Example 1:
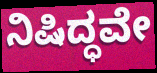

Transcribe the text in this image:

ನಿಷಿದ್ಧವೇ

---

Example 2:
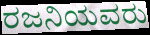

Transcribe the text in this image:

ರಜನಿಯವರು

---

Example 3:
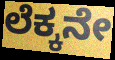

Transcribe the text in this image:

ಲೆಕ್ಕನೇ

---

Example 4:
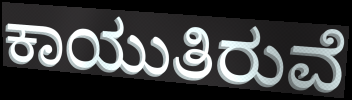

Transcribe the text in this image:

ಕಾಯುತಿರುವೆ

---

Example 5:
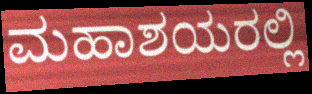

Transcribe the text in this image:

ಮಹಾಶಯರಲ್ಲಿ